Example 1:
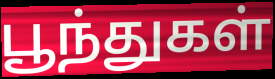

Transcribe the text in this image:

பூந்துகள்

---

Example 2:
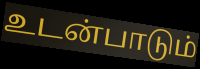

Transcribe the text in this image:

உடன்பாடும்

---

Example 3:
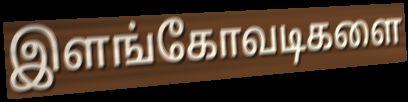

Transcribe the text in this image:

இளங்கோவடிகளை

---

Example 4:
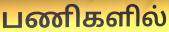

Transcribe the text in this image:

பணிகளில்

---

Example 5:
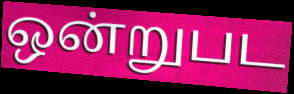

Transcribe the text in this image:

ஒன்றுபட